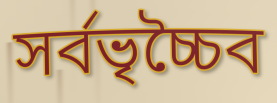
সর্বভৃচ্চৈব